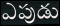
ఎపుడు